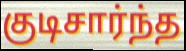
குடிசார்ந்த